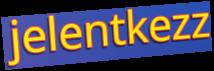
jelentkezz